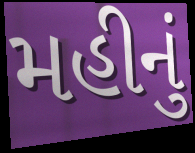
મહીનું